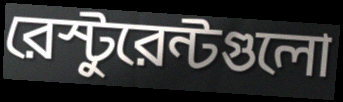
রেস্টুরেন্টগুলো